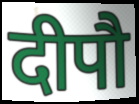
दीपौ